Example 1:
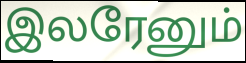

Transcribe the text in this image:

இலரேனும்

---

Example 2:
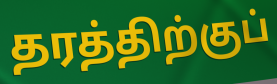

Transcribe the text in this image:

தரத்திற்குப்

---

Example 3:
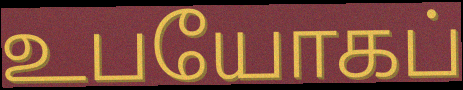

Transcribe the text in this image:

உபயோகப்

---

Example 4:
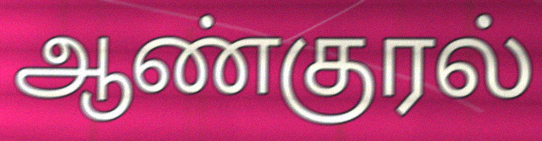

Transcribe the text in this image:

ஆண்குரல்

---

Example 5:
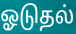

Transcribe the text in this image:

ஓடுதல்